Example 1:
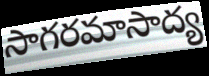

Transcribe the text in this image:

సాగరమాసాద్య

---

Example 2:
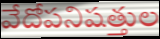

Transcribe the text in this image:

వేదోపనిషత్తుల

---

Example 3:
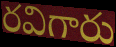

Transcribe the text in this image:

రవిగారు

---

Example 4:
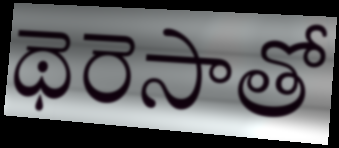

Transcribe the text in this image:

థెరెసాతో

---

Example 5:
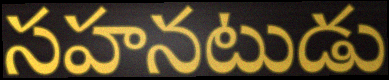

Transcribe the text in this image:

సహనటుడు